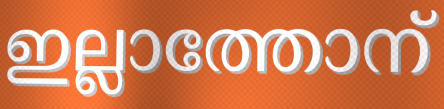
ഇല്ലാത്തോന്